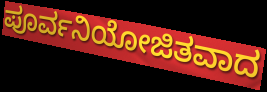
ಪೂರ್ವನಿಯೋಜಿತವಾದ